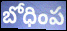
బోధింప